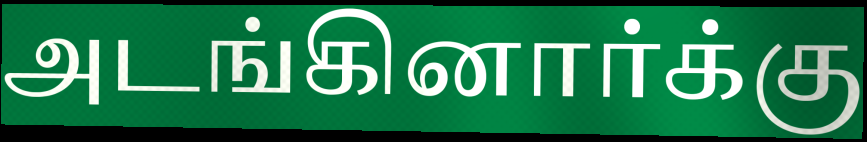
அடங்கினார்க்கு